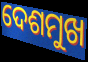
ଦେଶମୁଖ